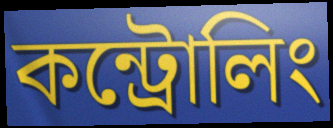
কন্ট্রোলিং